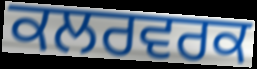
ਕਲਰਵਰਕ